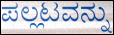
ಪಲ್ಲಟವನ್ನು